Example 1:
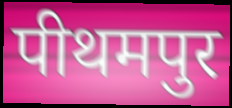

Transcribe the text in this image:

पीथमपुर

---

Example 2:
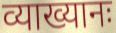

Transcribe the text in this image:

व्याख्यानः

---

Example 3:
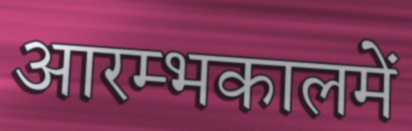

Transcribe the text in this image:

आरम्भकालमें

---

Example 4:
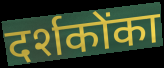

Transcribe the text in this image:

दर्शकोंका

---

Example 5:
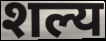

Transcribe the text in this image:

शल्य